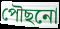
পৌছনো